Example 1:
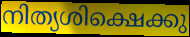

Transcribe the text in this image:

നിത്യശിക്ഷെക്കു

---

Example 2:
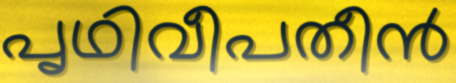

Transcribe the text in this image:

പൃഥിവീപതീൻ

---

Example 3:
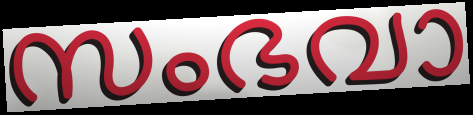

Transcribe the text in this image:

സംഭവാ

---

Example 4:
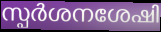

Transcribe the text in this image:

സ്പർശനശേഷി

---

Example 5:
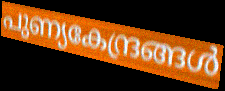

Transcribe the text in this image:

പുണ്യകേന്ദ്രങ്ങൾ